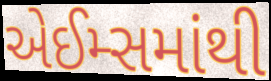
એઈમ્સમાંથી